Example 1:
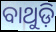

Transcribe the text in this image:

ବାଥୁଡ଼ି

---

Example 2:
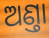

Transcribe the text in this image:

ଅଣ୍ତା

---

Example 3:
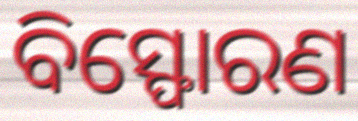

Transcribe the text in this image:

ବିସ୍ଫୋରଣ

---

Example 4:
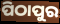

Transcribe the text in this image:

ପିଠାପୁର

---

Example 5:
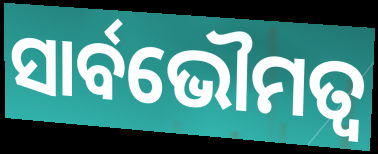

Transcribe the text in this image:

ସାର୍ବଭୌମତ୍ଵ